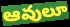
ఆవులూ